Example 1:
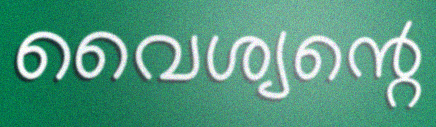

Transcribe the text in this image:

വൈശ്യന്റെ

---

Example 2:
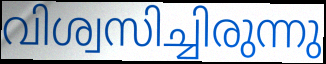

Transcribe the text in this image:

വിശ്വസിച്ചിരുന്നു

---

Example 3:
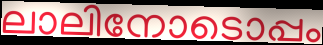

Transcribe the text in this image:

ലാലിനോടൊപ്പം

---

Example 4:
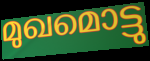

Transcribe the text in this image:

മുഖമൊട്ടു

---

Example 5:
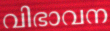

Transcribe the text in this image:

വിഭാവന